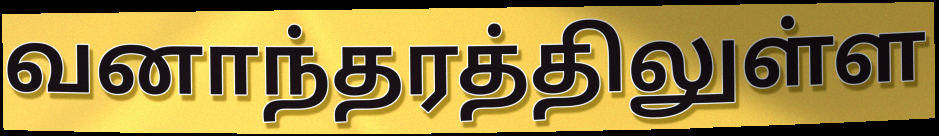
வனாந்தரத்திலுள்ள